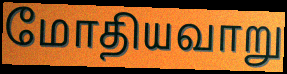
மோதியவாறு